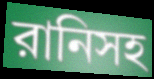
রানিসহ